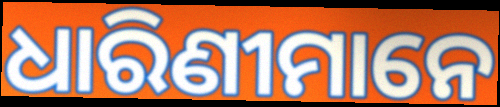
ଧାରିଣୀମାନେ